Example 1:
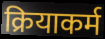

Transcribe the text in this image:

क्रियाकर्म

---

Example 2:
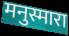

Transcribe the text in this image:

मनुस्मारा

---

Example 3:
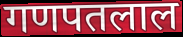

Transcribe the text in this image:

गणपतलाल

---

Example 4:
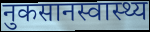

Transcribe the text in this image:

नुकसानस्वास्थ्य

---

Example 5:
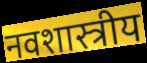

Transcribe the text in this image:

नवशास्त्रीय